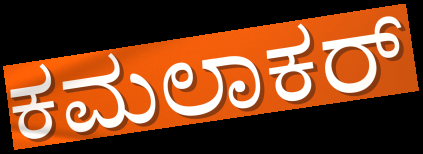
ಕಮಲಾಕರ್